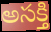
అసక్తి